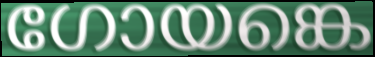
ഗോയങ്കെ